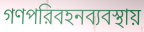
গণপরিবহনব্যবস্থায়